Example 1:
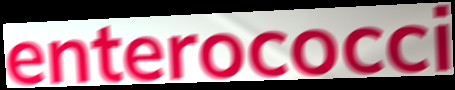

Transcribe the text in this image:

enterococci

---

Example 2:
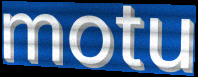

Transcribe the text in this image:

motu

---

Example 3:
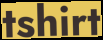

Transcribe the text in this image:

tshirt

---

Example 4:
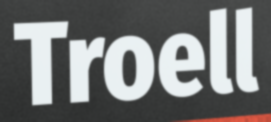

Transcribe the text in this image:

Troell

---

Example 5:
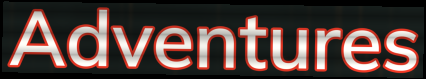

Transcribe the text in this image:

Adventures